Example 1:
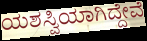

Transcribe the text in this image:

ಯಶಸ್ವಿಯಾಗಿದ್ದೇವೆ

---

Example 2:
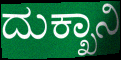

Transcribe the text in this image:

ದುಕ್ಖಾನಿ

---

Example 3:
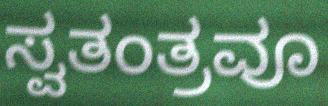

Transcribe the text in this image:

ಸ್ವತಂತ್ರವೂ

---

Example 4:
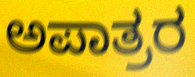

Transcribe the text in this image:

ಅಪಾತ್ರರ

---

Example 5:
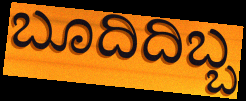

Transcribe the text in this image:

ಬೂದಿದಿಬ್ಬ